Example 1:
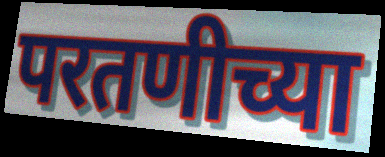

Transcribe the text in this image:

परतणीच्या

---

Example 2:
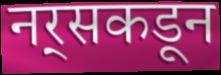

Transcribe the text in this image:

नर्सकडून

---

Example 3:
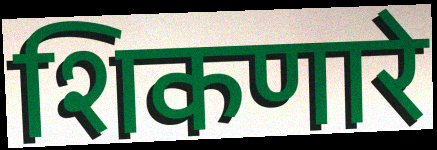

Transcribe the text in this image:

शिकणारे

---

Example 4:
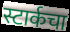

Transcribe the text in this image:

स्टार्कचा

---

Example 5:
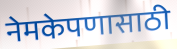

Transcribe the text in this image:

नेमकेपणासाठी